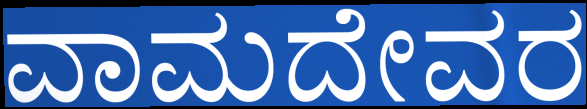
ವಾಮದೇವರ